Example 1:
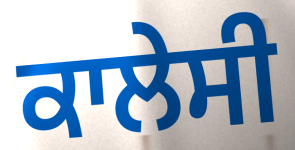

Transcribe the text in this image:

ਕਾਲੇਸੀ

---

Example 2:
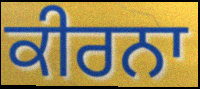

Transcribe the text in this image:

ਕੀਰਨਾ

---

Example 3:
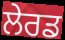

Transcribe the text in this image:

ਲੇਰਡ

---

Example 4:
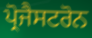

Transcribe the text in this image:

ਪ੍ਰੋਜੈਸਟਰੋਨ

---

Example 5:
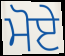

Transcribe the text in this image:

ਮੋਏ